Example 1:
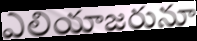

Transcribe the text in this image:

ఎలియాజరునూ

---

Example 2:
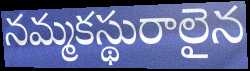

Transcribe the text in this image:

నమ్మకస్థురాలైన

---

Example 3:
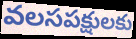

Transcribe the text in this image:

వలసపక్షులకు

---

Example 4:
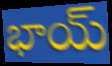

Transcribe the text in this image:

భాయ్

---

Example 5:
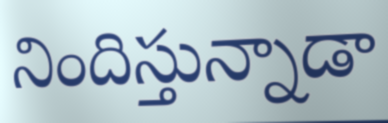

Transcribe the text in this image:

నిందిస్తున్నాడా